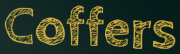
Coffers